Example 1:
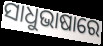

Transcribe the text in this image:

ସାଧୁଭାଷାରେ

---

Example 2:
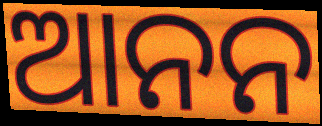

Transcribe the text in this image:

ଆନନ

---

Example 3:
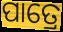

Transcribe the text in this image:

ପାତ୍ରେ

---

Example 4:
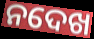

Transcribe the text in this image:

ନଦେଖ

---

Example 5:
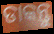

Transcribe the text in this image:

ଡାକନ୍ତୁ